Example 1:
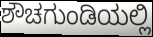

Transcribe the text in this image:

ಶೌಚಗುಂಡಿಯಲ್ಲಿ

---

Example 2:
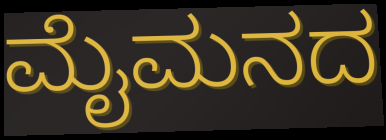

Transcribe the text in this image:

ಮೈಮನದ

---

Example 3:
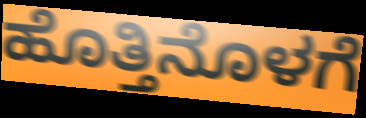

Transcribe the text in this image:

ಹೊತ್ತಿನೊಳಗೆ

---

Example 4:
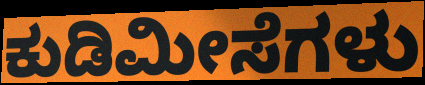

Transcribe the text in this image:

ಕುಡಿಮೀಸೆಗಳು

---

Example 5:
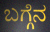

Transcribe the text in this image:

ಬಗ್ಗೆನ